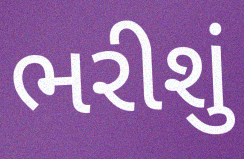
ભરીશું